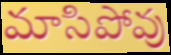
మాసిపోవు